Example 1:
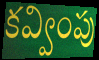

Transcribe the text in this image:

కవ్వింపు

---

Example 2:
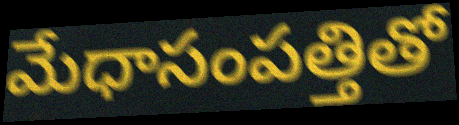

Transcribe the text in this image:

మేధాసంపత్తితో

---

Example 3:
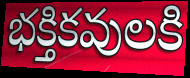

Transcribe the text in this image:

భక్తికవులకి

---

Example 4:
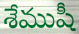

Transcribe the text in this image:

శేముషీ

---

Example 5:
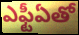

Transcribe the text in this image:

ఎఫ్టీఏతో